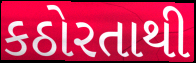
કઠોરતાથી